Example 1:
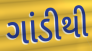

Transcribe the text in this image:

ગાંડીથી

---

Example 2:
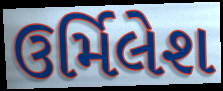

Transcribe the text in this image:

ઉર્મિલેશ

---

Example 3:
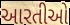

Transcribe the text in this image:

આરતીઓ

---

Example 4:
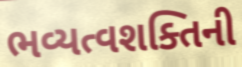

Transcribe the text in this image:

ભવ્યત્વશક્તિની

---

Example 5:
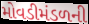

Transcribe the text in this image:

મોવડીમંડળની